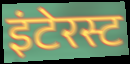
इंटेरस्ट